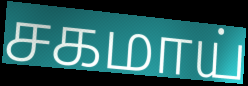
சகமாய்